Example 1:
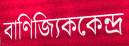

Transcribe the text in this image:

বাণিজ্যিককেন্দ্র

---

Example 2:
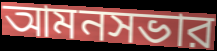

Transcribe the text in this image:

আমনসভার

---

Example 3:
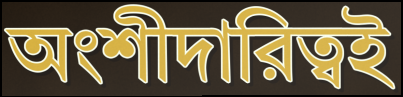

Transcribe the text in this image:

অংশীদারিত্বই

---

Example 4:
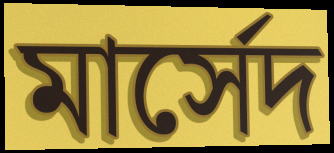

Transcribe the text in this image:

মার্সেদ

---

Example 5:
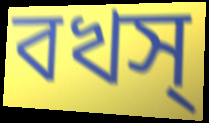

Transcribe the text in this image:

বখস্